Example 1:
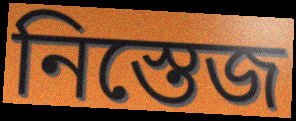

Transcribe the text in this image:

নিস্তেজ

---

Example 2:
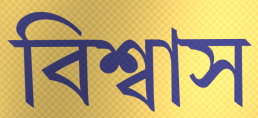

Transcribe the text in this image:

বিশ্বাস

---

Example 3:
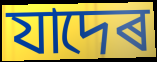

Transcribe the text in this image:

যাদেৰ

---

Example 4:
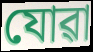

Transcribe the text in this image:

যোৱা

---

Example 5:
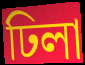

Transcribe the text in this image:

ঢিলা